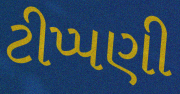
ટીપ્પણી